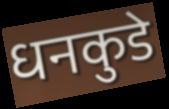
धनकुडे